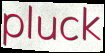
pluck